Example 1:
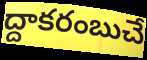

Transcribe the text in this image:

ద్దాకరంబుచే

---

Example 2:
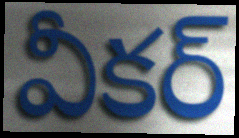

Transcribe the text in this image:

వీకర్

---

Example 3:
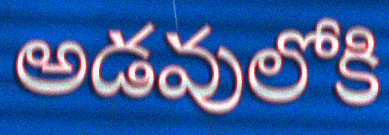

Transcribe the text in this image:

అడవులోకి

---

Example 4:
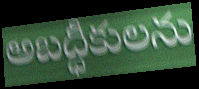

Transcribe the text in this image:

అబద్ధీకులను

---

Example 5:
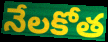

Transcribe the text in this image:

నేలకోత